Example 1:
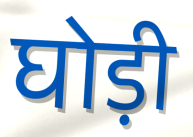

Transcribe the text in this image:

घोड़ी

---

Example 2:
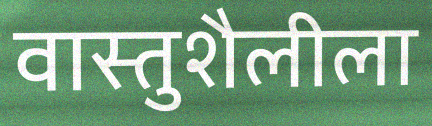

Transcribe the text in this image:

वास्तुशैलीला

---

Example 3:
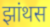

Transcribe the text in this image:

झांथस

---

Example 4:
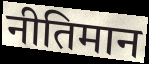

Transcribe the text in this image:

नीतिमान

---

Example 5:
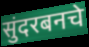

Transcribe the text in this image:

सुंदरबनचे